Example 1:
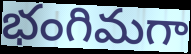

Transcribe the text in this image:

భంగిమగా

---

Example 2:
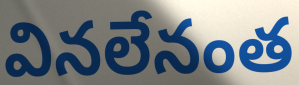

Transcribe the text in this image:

వినలేనంత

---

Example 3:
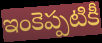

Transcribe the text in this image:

ఇంకెప్పటికీ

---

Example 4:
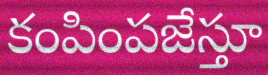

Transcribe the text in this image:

కంపింపజేస్తూ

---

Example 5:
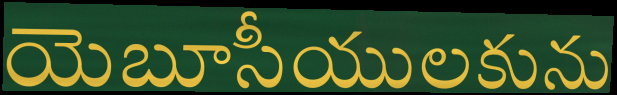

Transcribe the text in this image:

యెబూసీయులకును